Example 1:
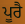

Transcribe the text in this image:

ਪੂਰੈ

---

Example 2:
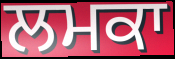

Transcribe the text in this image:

ਲਮਕਾ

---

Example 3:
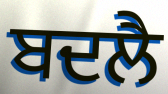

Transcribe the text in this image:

ਬਦਲੈ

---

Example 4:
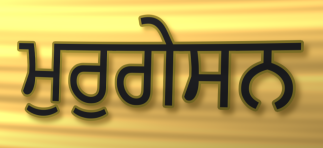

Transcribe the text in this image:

ਮੁਰੁਗੇਸਨ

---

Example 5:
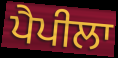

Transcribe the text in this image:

ਪੈਪੀਲਾ